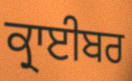
ਕ੍ਰਾਈਬਰ